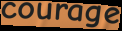
courage